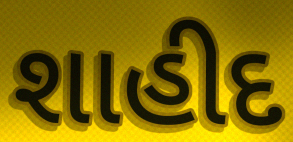
શાહીદ